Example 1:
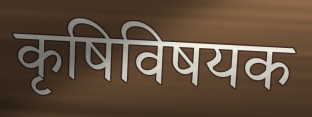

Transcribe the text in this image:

कृषिविषयक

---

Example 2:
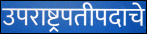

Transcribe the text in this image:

उपराष्ट्रपतीपदाचे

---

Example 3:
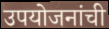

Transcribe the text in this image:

उपयोजनांची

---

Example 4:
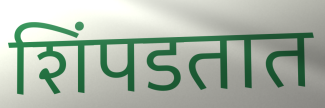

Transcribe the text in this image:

शिंपडतात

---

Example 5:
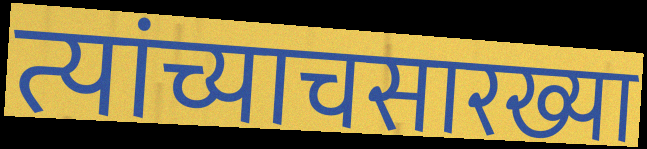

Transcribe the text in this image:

त्यांच्याचसारख्या